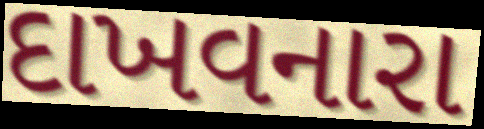
દાખવનારા